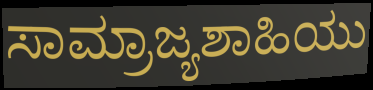
ಸಾಮ್ರಾಜ್ಯಶಾಹಿಯು